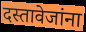
दस्तावेजांना